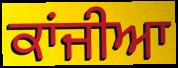
ਕਾਂਜੀਆ